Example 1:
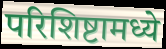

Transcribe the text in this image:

परिशिष्टामध्ये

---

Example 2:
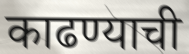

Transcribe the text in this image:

काढण्याची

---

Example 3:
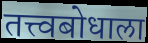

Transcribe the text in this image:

तत्त्वबोधाला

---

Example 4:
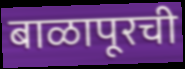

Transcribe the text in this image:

बाळापूरची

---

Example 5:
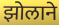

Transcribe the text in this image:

झोलाने